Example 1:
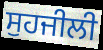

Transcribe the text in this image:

ਸੁਹਜੀਲੀ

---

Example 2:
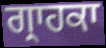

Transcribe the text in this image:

ਗ੍ਰਾਹਕਾ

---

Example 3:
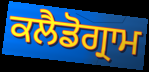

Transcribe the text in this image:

ਕਲੈਡੋਗ੍ਰਾਮ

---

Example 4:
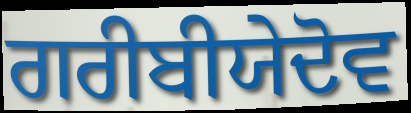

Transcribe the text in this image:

ਗਰੀਬੀਯੇਦੋਵ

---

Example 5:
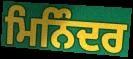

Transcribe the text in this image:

ਮਿਨਿੰਦਰ